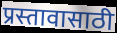
प्रस्तावासाठी